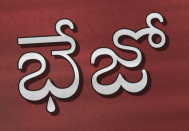
భేజో